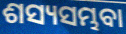
ଶସ୍ୟସମ୍ଭବା